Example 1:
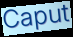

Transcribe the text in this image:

Caput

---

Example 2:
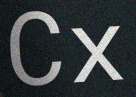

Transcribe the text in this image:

Cx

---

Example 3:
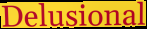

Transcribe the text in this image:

Delusional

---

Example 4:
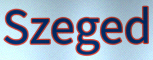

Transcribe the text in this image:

Szeged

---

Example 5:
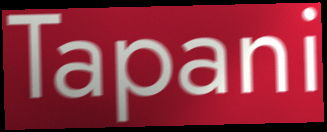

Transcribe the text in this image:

Tapani